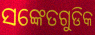
ସଙ୍କେତଗୁଡିକ